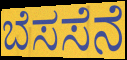
ಬೆಸಸೆನೆ